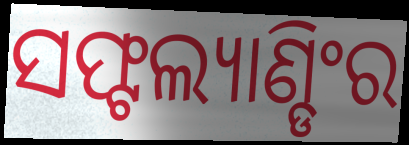
ସଫ୍ଟଲ୍ୟାଣ୍ଡିଂର